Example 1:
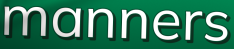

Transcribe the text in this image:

manners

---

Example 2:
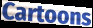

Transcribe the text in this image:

Cartoons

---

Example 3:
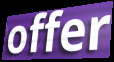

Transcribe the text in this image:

offer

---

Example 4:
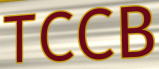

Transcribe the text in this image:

TCCB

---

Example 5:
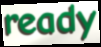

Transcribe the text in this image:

ready